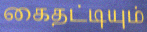
கைதட்டியும்